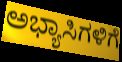
ಅಭ್ಯಾಸಿಗಳಿಗೆ